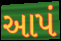
આપં